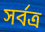
সৰ্বত্ৰ